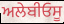
ਅਲੇਬੀਓਸੂ